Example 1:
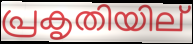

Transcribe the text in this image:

പ്രകൃതിയില്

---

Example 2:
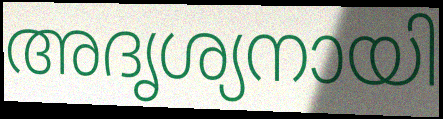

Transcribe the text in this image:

അദൃശ്യനായി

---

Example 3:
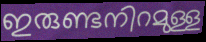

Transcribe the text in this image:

ഇരുണ്ടനിറമുള്ള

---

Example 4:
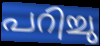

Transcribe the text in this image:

പറിച്ചു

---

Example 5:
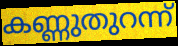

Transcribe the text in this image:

കണ്ണുതുറന്ന്